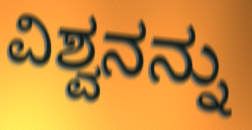
ವಿಶ್ವನನ್ನು